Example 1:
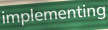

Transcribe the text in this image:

implementing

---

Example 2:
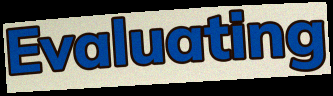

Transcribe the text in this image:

Evaluating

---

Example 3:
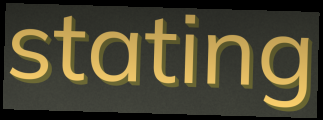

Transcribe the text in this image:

stating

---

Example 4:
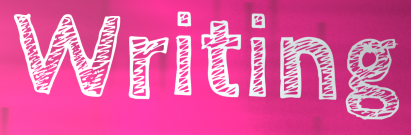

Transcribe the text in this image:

Writing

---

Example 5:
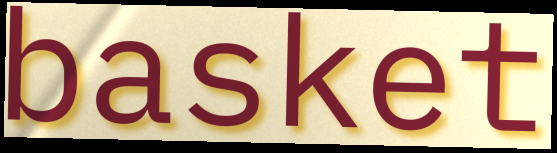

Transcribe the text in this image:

basket